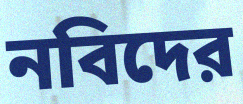
নবিদের